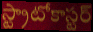
స్ట్రాటోకాస్టర్